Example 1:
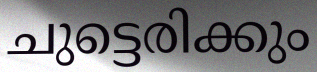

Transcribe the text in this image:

ചുട്ടെരിക്കും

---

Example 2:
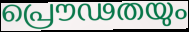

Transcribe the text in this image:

പ്രൌഢതയും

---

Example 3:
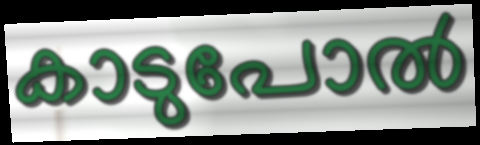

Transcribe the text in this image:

കാടുപോൽ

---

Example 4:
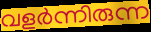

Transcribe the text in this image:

വളർന്നിരുന്ന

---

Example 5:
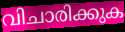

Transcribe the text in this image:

വിചാരിക്കുക